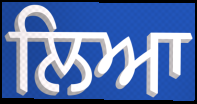
ਲਿਆ